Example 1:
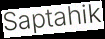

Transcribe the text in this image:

Saptahik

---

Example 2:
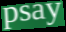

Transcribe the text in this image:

psay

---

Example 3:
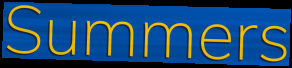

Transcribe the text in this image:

Summers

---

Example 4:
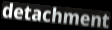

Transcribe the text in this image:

detachment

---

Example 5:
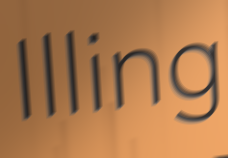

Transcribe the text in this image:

Illing